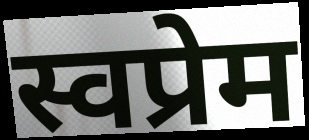
स्वप्रेम